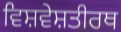
ਵਿਸ਼ਵੇਸ਼ਤੀਰਥ